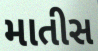
માતીસ